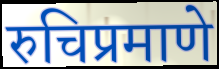
रुचिप्रमाणे